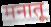
मनातू